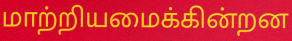
மாற்றியமைக்கின்றன